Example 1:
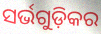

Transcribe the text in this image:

ସର୍ଭଗୁଡ଼ିକର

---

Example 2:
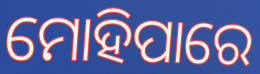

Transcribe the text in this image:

ମୋହିପାରେ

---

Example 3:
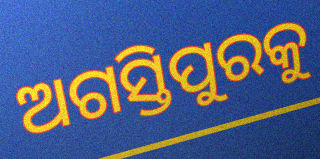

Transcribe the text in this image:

ଅଗସ୍ତିପୁରକୁ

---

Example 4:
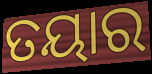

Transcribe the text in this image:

ତୟାର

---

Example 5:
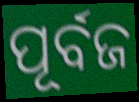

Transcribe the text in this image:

ପୂର୍ବଜ